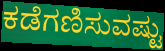
ಕಡೆಗಣಿಸುವಷ್ಟು